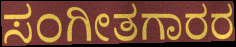
ಸಂಗೀತಗಾರರ